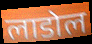
लाडोल